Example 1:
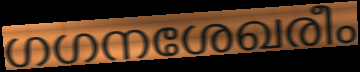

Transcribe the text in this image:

ഗഗനശേഖരീം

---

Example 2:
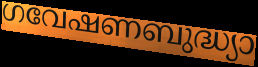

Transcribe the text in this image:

ഗവേഷണബുദ്ധ്യാ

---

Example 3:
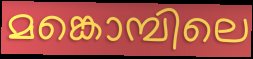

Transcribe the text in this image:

മങ്കൊമ്പിലെ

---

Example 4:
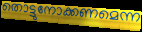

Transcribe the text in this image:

തൊട്ടുനോക്കണമെന്ന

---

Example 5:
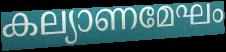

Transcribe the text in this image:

കല്യാണമേഘം